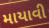
માયાવી